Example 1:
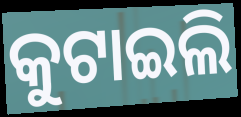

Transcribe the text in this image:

କୁଟାଇଲି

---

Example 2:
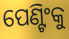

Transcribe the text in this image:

ପେଣ୍ଟିଂକୁ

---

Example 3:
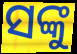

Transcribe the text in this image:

ସଙ୍କୁ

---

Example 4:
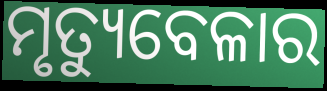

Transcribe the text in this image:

ମୃତ୍ୟୁବେଳାର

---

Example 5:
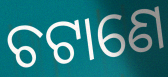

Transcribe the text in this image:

ଚଟାଣେ